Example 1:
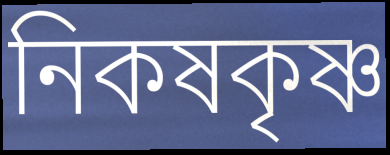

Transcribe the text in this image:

নিকষকৃষ্ণ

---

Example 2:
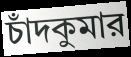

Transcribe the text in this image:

চাঁদকুমার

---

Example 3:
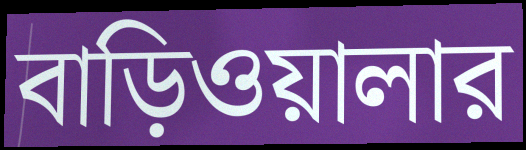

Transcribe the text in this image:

বাড়িওয়ালার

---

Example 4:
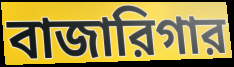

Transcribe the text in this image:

বাজারিগার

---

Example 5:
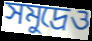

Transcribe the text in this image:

সমুদ্রেও